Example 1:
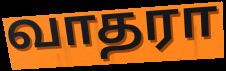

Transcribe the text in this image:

வாதரா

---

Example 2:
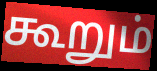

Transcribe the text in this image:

கூறும்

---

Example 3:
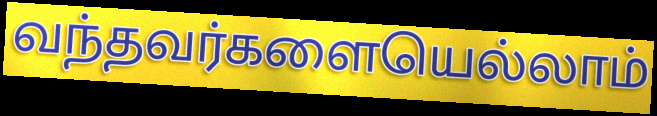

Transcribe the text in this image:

வந்தவர்களையெல்லாம்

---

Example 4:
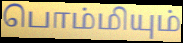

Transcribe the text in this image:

பொம்மியும்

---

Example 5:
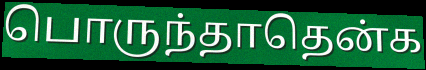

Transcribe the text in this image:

பொருந்தாதென்க